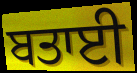
ਬਤਾਈ